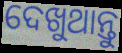
ଦେଖୁଥାନ୍ତୁ